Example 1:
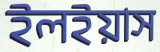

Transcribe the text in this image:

ইলইয়াস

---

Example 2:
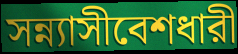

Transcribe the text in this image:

সন্ন্যাসীবেশধারী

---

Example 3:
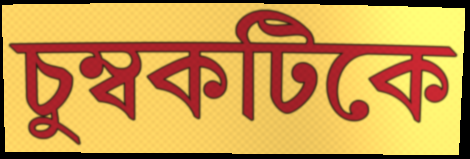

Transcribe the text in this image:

চুম্বকটিকে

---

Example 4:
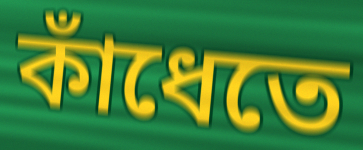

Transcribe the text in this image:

কাঁধেতে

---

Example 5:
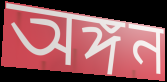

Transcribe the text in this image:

অঙ্গন